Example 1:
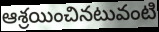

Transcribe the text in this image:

ఆశ్రయించినటువంటి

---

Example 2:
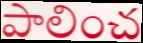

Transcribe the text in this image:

పాలించ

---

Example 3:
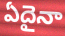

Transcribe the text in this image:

ఏదైనా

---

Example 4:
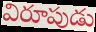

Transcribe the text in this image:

విరూపుడు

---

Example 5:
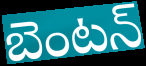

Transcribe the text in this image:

బెంటన్